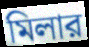
মিলার